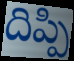
దిప్పి